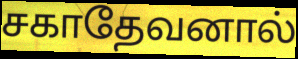
சகாதேவனால்